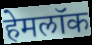
हेमलॉक